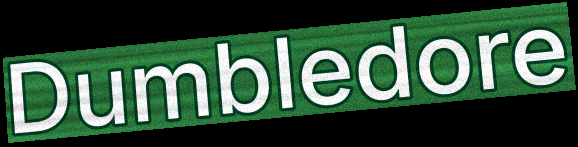
Dumbledore